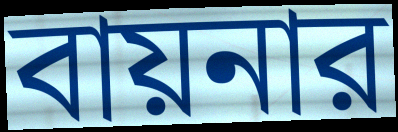
বায়নার